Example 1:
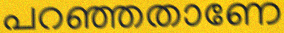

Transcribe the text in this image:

പറഞ്ഞതാണേ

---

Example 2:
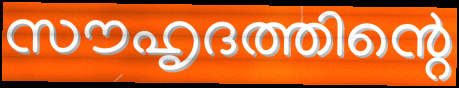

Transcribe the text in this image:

സൗഹൃദത്തിന്റെ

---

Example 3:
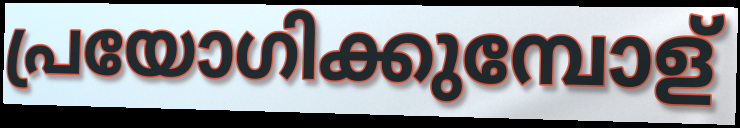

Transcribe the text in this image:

പ്രയോഗിക്കുമ്പോള്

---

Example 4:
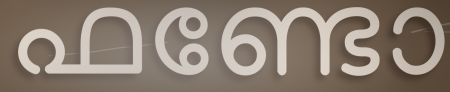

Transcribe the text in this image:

ഫണ്ടോ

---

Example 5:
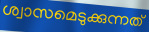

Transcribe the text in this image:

ശ്വാസമെടുക്കുന്നത്